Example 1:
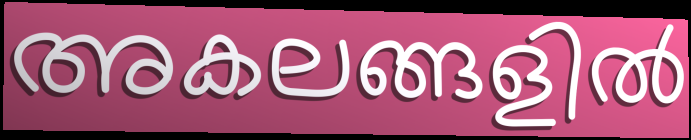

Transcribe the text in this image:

അകലങ്ങളിൽ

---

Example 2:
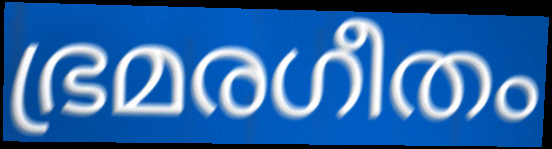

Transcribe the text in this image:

ഭ്രമരഗീതം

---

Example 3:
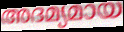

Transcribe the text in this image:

അദമ്യമായ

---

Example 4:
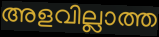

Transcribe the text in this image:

അളവില്ലാത്ത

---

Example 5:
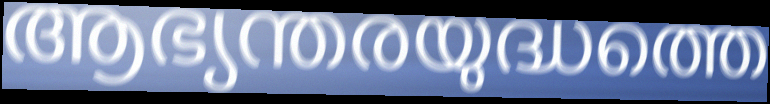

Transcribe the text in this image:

ആഭ്യന്തരയുദ്ധത്തെ